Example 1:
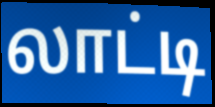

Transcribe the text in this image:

லாட்டி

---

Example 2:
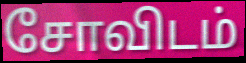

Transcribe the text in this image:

சோவிடம்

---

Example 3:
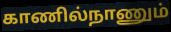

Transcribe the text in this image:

காணில்நாணும்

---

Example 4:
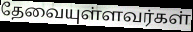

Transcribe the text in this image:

தேவையுள்ளவர்கள்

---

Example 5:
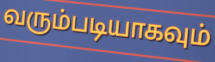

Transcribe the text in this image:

வரும்படியாகவும்